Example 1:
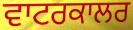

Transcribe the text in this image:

ਵਾਟਰਕਾਲਰ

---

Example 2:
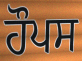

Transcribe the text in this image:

ਹੌਪਸ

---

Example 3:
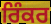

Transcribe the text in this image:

ਰਿੰਕਰ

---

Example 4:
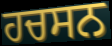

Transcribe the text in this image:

ਹਚਸਨ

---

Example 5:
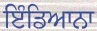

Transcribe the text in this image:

ਇੰਡਿਆਨਾ